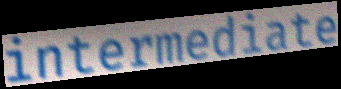
intermediate